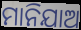
ମାନିଯାଅ